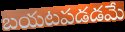
బయటపడడమే